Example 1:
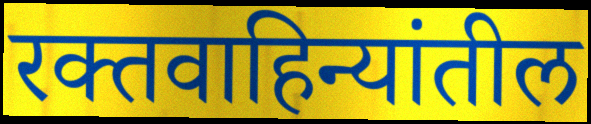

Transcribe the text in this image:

रक्तवाहिन्यांतील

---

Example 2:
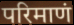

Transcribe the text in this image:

परिमाणं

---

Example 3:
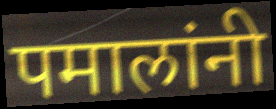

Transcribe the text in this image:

पमालांनी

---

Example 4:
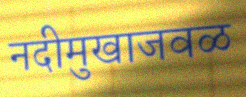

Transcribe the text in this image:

नदीमुखाजवळ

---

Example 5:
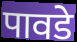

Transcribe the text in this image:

पावडे